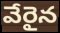
వేరైన